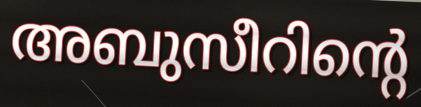
അബുസീറിന്റെ